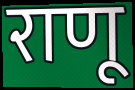
राणू